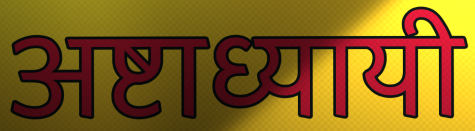
अष्टाध्यायी